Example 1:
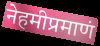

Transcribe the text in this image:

नेहमीप्रमाणं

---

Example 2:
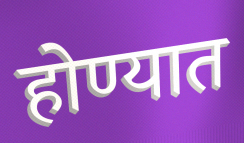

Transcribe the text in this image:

होण्यात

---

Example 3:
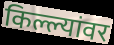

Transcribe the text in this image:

किल्ल्यांवर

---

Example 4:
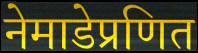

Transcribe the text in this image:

नेमाडेप्रणित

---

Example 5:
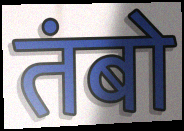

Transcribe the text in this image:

तंबो